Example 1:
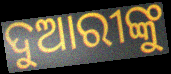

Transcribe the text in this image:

ଦୁଆରୀଙ୍କୁ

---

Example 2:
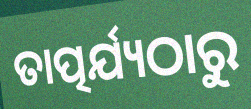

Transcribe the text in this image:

ତାତ୍ପର୍ଯ୍ୟଠାରୁ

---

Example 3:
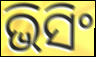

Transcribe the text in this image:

ଭିସିଂ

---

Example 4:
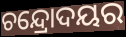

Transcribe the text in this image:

ଚନ୍ଦ୍ରୋଦୟର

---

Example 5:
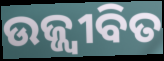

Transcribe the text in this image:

ଉଜ୍ଜ୍ୱୀବିତ